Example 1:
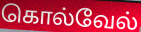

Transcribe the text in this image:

கொல்வேல்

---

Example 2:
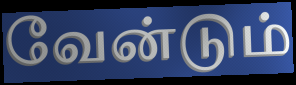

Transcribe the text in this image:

வேன்டும்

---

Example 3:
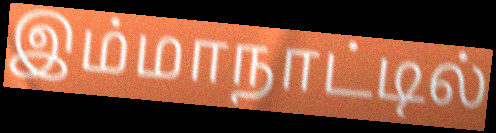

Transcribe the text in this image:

இம்மாநாட்டில்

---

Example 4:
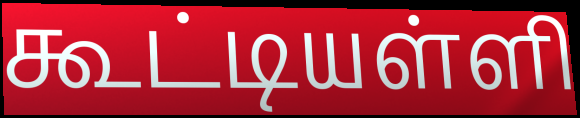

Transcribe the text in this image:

கூட்டியள்ளி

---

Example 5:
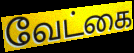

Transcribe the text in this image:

வேட்கை